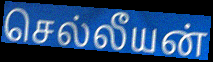
செல்லீயன்